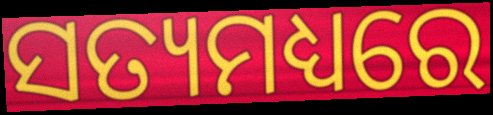
ସତ୍ୟମଧ୍ୟରେ